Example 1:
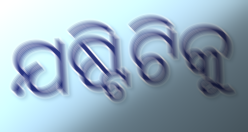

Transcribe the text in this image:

ଯଷ୍ଟିଟିକୁ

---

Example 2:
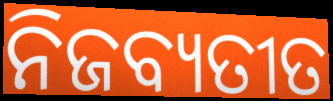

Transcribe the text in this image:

ନିଜବ୍ୟତୀତ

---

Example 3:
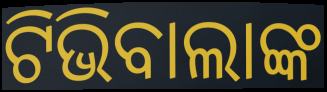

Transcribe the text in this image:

ଟିଭିବାଲାଙ୍କ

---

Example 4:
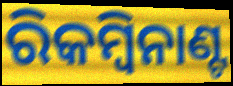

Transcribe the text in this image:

ରିକମ୍ବିନାଣ୍ଟ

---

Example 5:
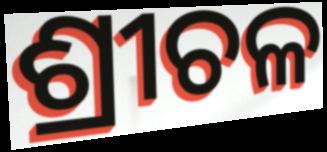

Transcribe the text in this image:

ଶ୍ରୀଚଳ